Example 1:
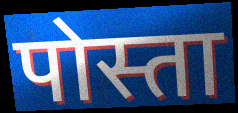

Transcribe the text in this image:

पोस्ता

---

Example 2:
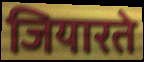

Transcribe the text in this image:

जियारते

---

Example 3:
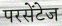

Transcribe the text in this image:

परसेंटेज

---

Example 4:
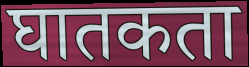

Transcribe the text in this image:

घातकता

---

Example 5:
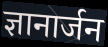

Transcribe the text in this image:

ज्ञानार्जन